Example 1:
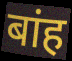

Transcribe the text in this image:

बांह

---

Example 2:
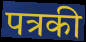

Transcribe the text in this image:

पत्रकी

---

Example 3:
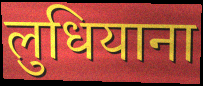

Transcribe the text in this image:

लुधियाना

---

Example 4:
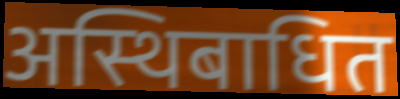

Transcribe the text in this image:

अस्थिबाधित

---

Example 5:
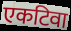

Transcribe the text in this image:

एकटिवा